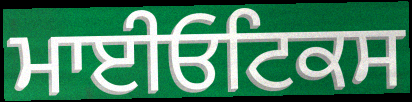
ਮਾਈਓਟਿਕਸ